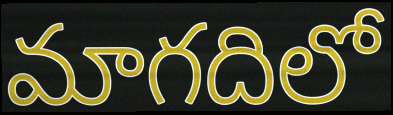
మాగదిలో